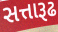
સત્તારૂઢ